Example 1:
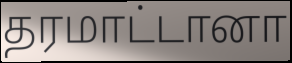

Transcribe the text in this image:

தரமாட்டானா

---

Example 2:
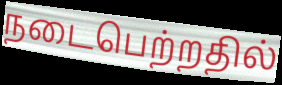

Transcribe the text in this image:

நடைபெற்றதில்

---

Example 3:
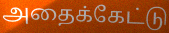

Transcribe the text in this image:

அதைக்கேட்டு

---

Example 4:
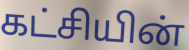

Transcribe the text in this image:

கட்சியின்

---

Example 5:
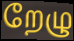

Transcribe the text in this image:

றேழு